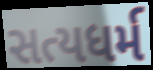
સત્યધર્મ